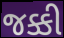
જક્કી